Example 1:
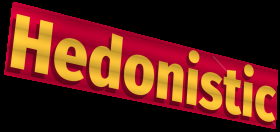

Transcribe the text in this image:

Hedonistic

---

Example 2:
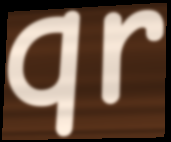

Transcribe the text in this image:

qr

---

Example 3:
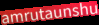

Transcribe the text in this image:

amrutaunshu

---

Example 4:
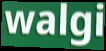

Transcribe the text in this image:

walgi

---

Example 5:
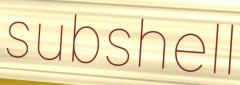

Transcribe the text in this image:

subshell